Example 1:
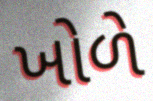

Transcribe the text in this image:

ખોળે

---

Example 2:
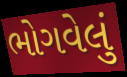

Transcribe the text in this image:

ભોગવેલું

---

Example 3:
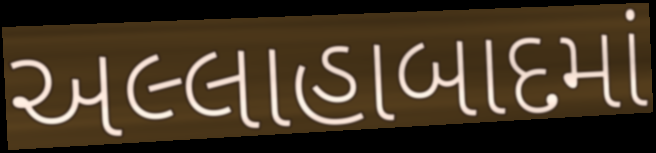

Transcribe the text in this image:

અલ્લાહાબાદમાં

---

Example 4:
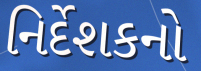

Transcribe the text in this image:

નિર્દેશકનો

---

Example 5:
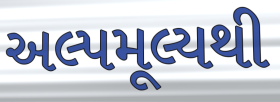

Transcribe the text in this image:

અલ્પમૂલ્યથી